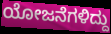
ಯೋಜನೆಗಳಿದ್ದು